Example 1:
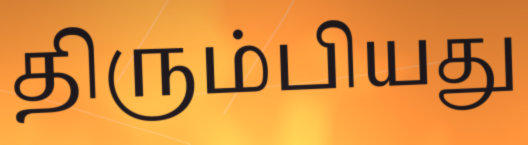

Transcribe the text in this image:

திரும்பியது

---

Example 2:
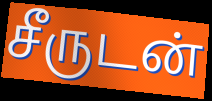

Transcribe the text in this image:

சீருடன்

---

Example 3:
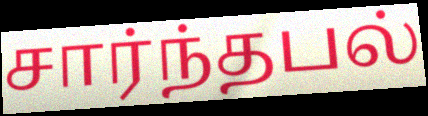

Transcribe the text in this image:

சார்ந்தபல்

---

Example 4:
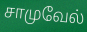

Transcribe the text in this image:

சாமுவேல்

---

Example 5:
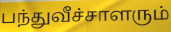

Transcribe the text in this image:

பந்துவீச்சாளரும்